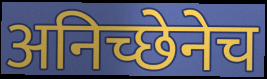
अनिच्छेनेच